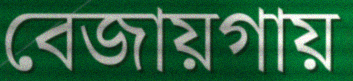
বেজায়গায়